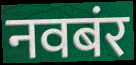
नवबंर